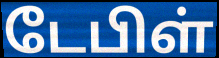
டேபிள்